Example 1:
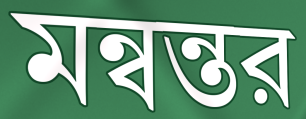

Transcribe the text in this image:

মন্বন্তর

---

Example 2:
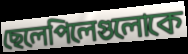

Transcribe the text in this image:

ছেলেপিলেগুলোকে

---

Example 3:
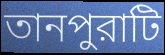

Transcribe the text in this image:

তানপুরাটি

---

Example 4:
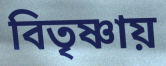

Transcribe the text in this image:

বিতৃষ্ণায়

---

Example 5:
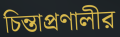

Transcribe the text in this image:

চিন্তাপ্রণালীর